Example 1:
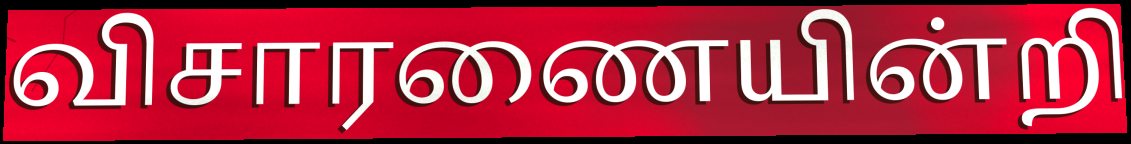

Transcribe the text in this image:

விசாரணையின்றி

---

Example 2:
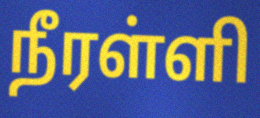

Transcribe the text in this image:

நீரள்ளி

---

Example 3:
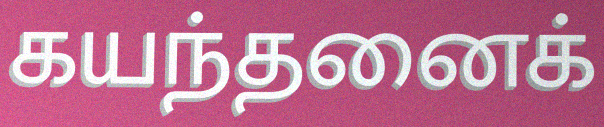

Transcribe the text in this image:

கயந்தனைக்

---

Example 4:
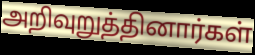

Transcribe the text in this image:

அறிவுறுத்தினார்கள்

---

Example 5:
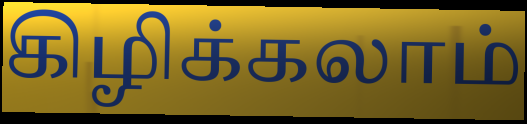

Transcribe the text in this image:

கிழிக்கலாம்